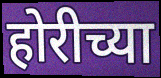
होरीच्या